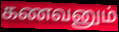
கணவனும்